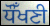
ਧੌਁਖਣੀ